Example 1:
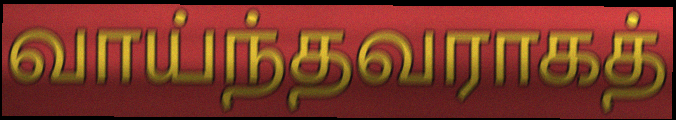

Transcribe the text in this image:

வாய்ந்தவராகத்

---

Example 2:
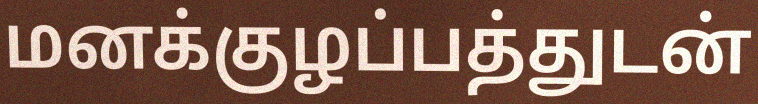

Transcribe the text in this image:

மனக்குழப்பத்துடன்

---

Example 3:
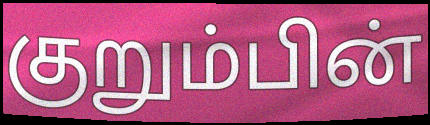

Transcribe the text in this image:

குறும்பின்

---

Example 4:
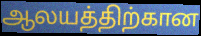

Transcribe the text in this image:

ஆலயத்திற்கான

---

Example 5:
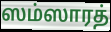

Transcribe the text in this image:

ஸம்ஸாரத்